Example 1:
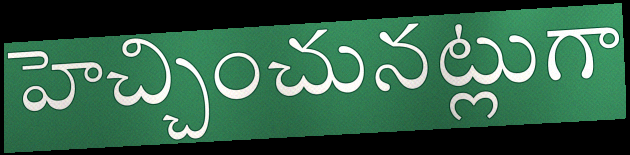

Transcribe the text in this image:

హెచ్చించునట్లుగా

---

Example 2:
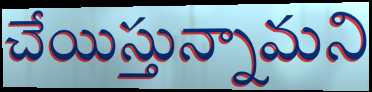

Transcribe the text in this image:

చేయిస్తున్నామని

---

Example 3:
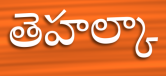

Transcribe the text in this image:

తెహల్కా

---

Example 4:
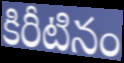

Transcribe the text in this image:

కిరీటినం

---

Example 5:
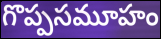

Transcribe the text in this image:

గొప్పసమూహం